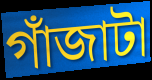
গাঁজাটা